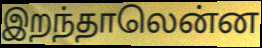
இறந்தாலென்ன